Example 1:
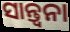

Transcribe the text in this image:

ସାନ୍ତ୍ୱନା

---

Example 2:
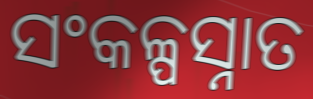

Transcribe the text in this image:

ସଂକଳ୍ପସ୍ନାତ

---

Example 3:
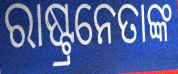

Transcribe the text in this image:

ରାଷ୍ଟ୍ରନେତାଙ୍କ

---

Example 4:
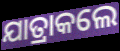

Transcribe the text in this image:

ଯାତ୍ରାକଲେ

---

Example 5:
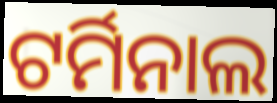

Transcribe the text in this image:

ଟର୍ମିନାଲ